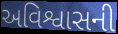
અવિશ્વાસની